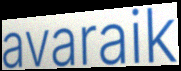
avaraik